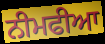
ਨੀਮਫੀਆ